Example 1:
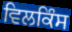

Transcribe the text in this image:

ਵਿਲਕਿੰਸ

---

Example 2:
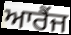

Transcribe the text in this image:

ਆਰੈਂਜ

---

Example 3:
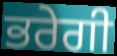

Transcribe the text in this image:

ਭਰੇਗੀ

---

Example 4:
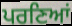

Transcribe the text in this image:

ਪਰਣਿਆਂ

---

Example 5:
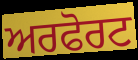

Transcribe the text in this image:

ਅਰਫੋਰਟ